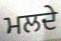
ਮਲਦੇ